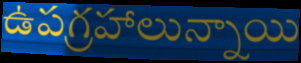
ఉపగ్రహాలున్నాయి